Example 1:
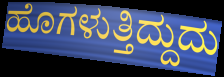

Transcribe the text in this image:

ಹೊಗಳುತ್ತಿದ್ದುದು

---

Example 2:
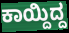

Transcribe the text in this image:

ಕಾಯ್ದಿದ್ದ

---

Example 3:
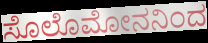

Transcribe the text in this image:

ಸೊಲೊಮೋನನಿಂದ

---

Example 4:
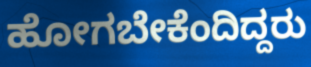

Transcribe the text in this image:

ಹೋಗಬೇಕೆಂದಿದ್ದರು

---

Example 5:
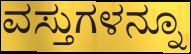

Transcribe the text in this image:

ವಸ್ತುಗಳನ್ನೂ